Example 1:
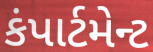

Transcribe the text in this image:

કંપાર્ટમેન્ટ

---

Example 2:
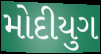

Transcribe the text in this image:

મોદીયુગ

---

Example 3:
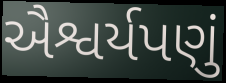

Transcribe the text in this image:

ઐશ્વર્યપણું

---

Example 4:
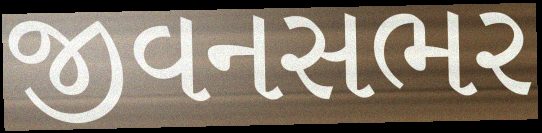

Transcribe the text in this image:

જીવનસભર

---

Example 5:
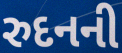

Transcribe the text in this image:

રુદનની